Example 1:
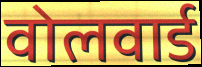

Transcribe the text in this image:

वोलवार्ड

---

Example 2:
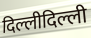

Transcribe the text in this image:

दिल्लीदिल्ली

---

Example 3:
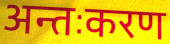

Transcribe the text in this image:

अन्तःकरण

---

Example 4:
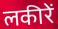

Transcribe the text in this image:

लकीरें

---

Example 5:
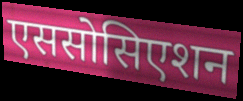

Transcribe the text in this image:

एससोसिएशन